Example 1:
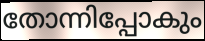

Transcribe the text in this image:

തോന്നിപ്പോകും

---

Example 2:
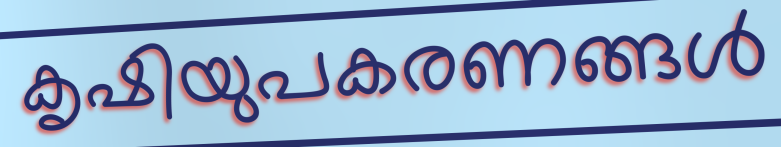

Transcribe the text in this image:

കൃഷിയുപകരണങ്ങൾ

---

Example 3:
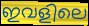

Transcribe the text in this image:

ഇവളിലെ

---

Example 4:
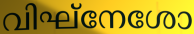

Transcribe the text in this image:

വിഘ്നേശോ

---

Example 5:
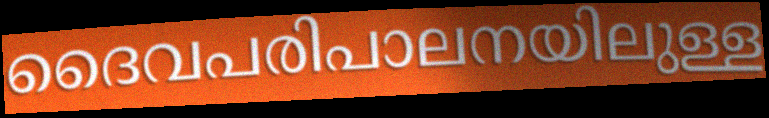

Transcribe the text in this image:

ദൈവപരിപാലനയിലുള്ള